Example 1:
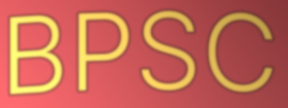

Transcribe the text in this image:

BPSC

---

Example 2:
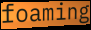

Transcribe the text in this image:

foaming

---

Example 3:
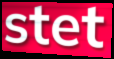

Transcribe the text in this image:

stet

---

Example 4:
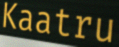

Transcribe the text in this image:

Kaatru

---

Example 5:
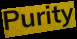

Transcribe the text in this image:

Purity